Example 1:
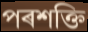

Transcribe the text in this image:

পৰশক্তি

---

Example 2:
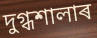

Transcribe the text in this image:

দুগ্ধশালাৰ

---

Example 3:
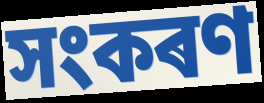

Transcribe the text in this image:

সংকৰণ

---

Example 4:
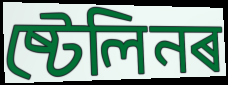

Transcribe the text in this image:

ষ্টেলিনৰ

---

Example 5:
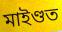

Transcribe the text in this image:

মাইণ্ডত